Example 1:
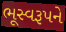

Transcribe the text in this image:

ભૂસ્વરૂપને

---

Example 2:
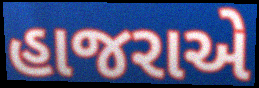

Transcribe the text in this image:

હાજરાએ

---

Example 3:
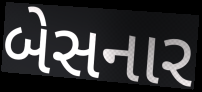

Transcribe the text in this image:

બેસનાર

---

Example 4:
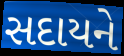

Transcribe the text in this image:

સદાયને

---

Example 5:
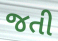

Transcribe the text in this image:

જતી